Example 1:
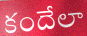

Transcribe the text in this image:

కందేలా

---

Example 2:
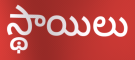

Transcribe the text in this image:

స్థాయిలు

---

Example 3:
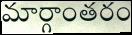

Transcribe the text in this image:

మార్గాంతరం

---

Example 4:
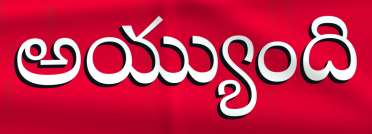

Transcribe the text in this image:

అయ్యుంది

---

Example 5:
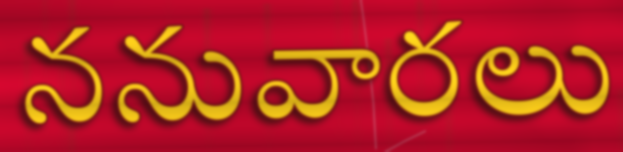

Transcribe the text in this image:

ననువారలు